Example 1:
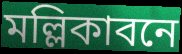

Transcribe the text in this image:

মল্লিকাবনে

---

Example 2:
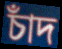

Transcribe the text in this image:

চাঁদ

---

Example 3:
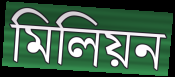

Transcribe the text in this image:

মিলিয়ন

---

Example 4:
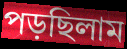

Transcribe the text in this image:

পড়ছিলাম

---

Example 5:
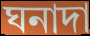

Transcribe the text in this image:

ঘনাদা